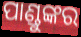
ପାଣ୍ଡୁଙ୍କର